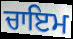
ਚਾਇਮ